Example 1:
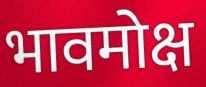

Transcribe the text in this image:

भावमोक्ष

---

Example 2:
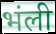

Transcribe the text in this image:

भंली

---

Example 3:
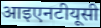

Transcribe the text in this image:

आइएनटीयूसी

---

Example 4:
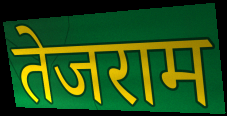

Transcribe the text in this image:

तेजराम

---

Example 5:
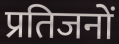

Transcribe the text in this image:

प्रतिजनों